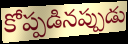
కోప్పడినప్పుడు